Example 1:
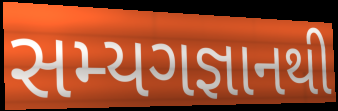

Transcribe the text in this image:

સમ્યગજ્ઞાનથી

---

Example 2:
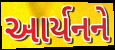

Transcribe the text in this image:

આર્યનને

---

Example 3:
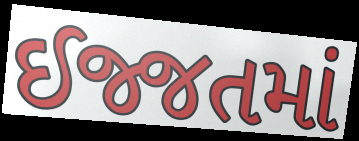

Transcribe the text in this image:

ઈજ્જતમાં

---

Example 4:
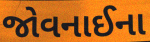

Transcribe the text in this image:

જોવનાઈના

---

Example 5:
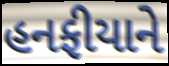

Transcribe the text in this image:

હનફીયાને